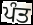
ਪੰਤ